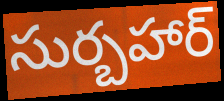
సుర్బహార్